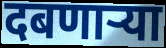
दबणाऱ्या